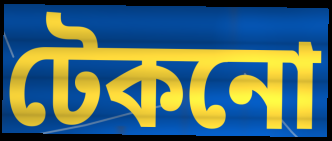
টেকনো